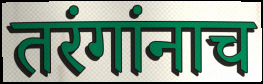
तरंगांनाच